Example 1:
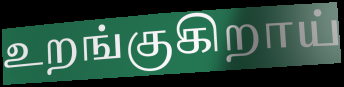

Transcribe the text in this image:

உறங்குகிறாய்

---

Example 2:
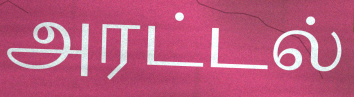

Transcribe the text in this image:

அரட்டல்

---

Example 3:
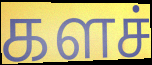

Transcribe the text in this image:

களச்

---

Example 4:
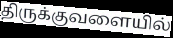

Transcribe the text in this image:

திருக்குவளையில்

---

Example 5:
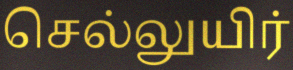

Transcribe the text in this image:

செல்லுயிர்